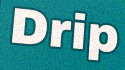
Drip